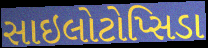
સાઇલોટોપ્સિડા